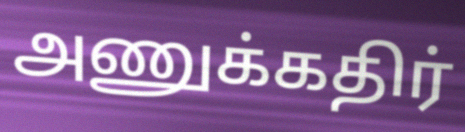
அணுக்கதிர்